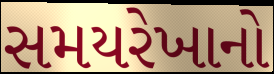
સમયરેખાનો